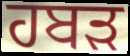
ਹਬੜ